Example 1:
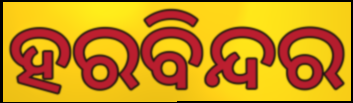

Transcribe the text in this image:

ହରବିନ୍ଦର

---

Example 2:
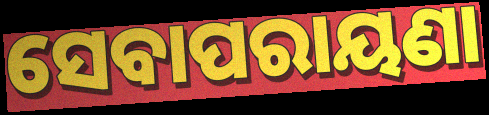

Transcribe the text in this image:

ସେବାପରାୟଣା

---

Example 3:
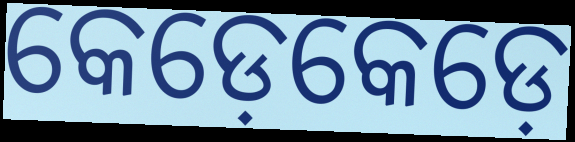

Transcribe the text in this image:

କେଡ଼େକେଡ଼େ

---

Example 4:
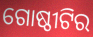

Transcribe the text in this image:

ଗୋଷ୍ଠୀଟିର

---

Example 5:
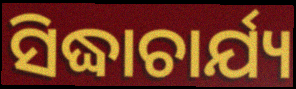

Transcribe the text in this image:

ସିଦ୍ଧାଚାର୍ଯ୍ୟ